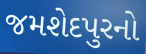
જમશેદપુરનો